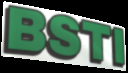
BSTI